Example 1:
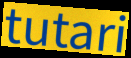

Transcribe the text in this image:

tutari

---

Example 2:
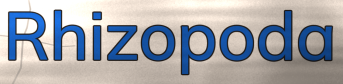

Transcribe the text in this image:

Rhizopoda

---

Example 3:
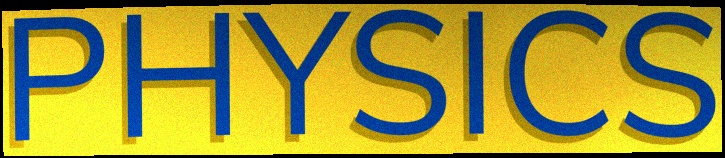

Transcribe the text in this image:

PHYSICS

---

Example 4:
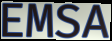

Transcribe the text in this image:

EMSA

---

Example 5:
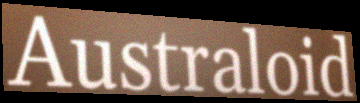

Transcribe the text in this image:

Australoid